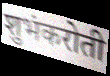
शुभंकरोती